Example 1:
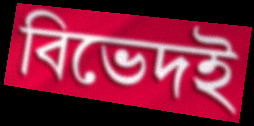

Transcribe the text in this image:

বিভেদই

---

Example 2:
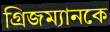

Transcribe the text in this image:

গ্রিজম্যানকে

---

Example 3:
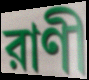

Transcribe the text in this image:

রাণী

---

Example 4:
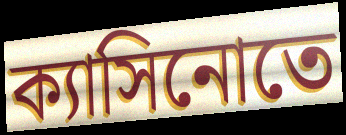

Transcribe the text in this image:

ক্যাসিনোতে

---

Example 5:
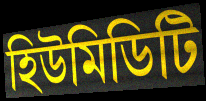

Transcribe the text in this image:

হিউমিডিটি